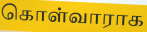
கொள்வாராக